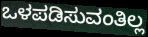
ಒಳಪಡಿಸುವಂತಿಲ್ಲ